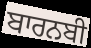
ਬਾਰਨਬੀ